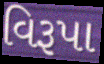
વિરૂપા